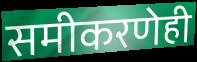
समीकरणेही